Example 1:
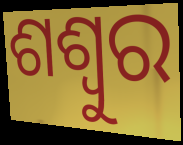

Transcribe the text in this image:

ଶଶ୍ୱୁର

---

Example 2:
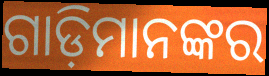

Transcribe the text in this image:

ଗାଡ଼ିମାନଙ୍କର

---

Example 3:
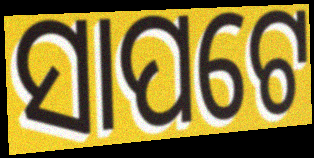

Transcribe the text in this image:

ସାପଟେ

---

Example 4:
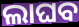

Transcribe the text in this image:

ଲାଘବ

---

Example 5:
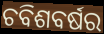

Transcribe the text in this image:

ଚବିଶବର୍ଷର